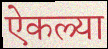
ऐकल्या